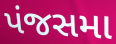
પંજસમા